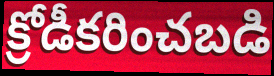
క్రోడీకరించబడి